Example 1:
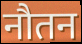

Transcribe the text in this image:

नौतन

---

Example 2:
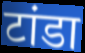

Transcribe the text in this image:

टांडा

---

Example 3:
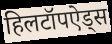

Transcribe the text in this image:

हिलटॉपऐड्स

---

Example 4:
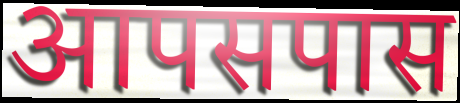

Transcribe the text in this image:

आपसपास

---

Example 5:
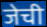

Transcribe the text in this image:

जेची